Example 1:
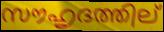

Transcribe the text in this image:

സൗഹൃദത്തില്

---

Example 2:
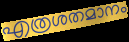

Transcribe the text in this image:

എത്രശതമാനം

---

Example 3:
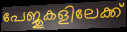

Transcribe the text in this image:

പേജുകളിലേക്ക്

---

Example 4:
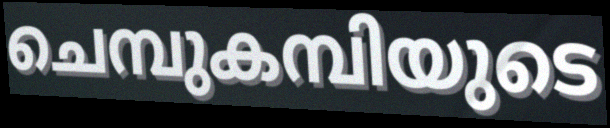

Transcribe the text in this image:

ചെമ്പുകമ്പിയുടെ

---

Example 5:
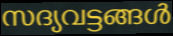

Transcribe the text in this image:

സദ്യവട്ടങ്ങൾ